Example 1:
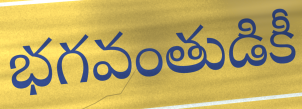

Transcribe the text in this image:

భగవంతుడికీ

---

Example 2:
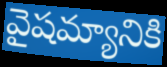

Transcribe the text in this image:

వైషమ్యానికి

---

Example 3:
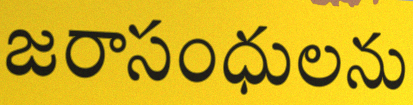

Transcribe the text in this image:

జరాసంధులను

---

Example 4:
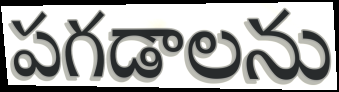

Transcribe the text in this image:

పగడాలను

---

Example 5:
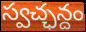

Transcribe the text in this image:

స్వచ్ఛన్దం